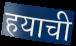
हयाची